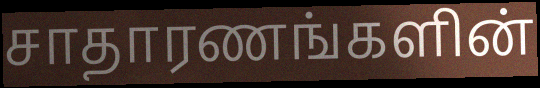
சாதாரணங்களின்